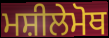
ਮਸ਼ੀਲੇਮੋਥ